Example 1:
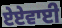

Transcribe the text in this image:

ਏਏਵਾਈ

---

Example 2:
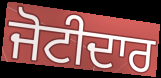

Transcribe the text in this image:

ਜੋਟੀਦਾਰ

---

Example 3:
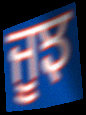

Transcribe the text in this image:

ਜੂਝ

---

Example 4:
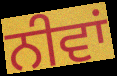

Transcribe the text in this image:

ਨੀਵਾਂ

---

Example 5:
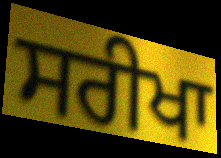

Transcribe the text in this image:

ਸਰੀਖਾ